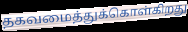
தகவமைத்துக்கொள்கிறது